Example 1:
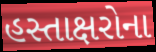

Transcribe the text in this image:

હસ્તાક્ષરોના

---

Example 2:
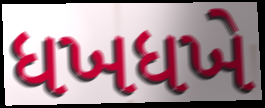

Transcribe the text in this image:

ધખધખે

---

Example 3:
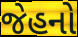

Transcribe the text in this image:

જેહનો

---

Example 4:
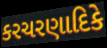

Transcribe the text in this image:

કરચરણાદિકે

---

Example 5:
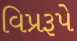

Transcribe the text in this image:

વિપ્રરૂપે